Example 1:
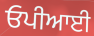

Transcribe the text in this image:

ਓਪੀਆਈ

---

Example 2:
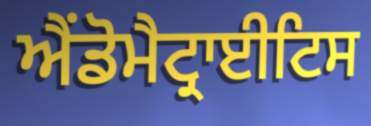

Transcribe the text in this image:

ਐਂਡੋਮੈਟ੍ਰਾਈਟਿਸ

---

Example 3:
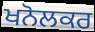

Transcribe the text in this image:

ਖਨੋਲਕਰ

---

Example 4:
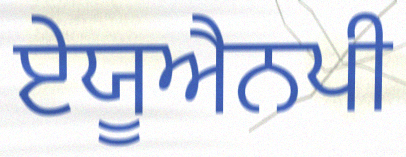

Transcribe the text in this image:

ਏਯੂਐਨਪੀ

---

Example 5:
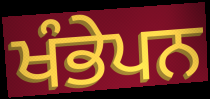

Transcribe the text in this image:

ਖੰਭੇਪਨ